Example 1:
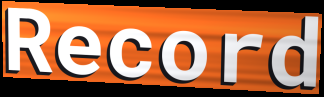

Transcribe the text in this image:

Record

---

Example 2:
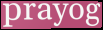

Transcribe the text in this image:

prayog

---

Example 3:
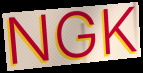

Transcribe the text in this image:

NGK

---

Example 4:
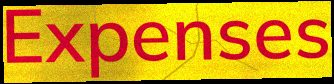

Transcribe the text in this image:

Expenses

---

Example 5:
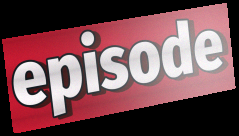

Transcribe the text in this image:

episode